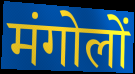
मंगोलों